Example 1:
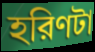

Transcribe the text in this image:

হরিণটা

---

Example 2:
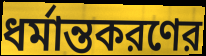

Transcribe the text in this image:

ধর্মান্তকরণের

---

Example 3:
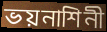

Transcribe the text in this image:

ভয়নাশিনী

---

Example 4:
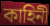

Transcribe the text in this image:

কাহিনী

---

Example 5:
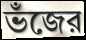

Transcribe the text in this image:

ভঁজের